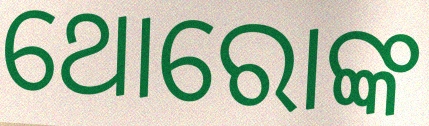
ଥୋରୋଙ୍କ